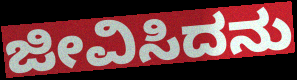
ಜೀವಿಸಿದನು